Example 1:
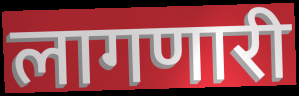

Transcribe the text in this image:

लागणारी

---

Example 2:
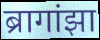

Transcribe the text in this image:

ब्रागांझा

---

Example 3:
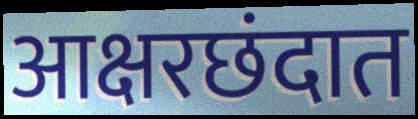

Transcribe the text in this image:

आक्षरछंदात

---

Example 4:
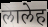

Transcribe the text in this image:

लालेह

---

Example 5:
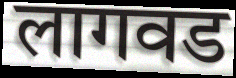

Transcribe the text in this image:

लागवड